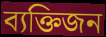
ব্যক্তিজন